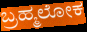
ಬ್ರಹ್ಮಲೋಕ